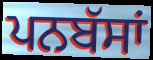
ਪਨਬੱਸਾਂ